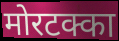
मोरटक्का